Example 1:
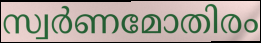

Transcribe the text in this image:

സ്വർണമോതിരം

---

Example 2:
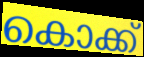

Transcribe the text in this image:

കൊക്ക്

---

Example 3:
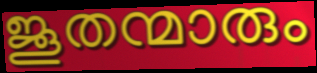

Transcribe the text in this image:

ജൂതന്മാരും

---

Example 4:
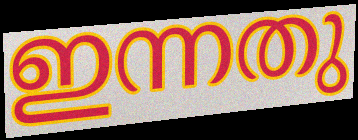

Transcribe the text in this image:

ഇന്നതു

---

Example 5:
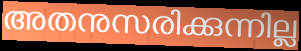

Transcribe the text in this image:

അതനുസരിക്കുന്നില്ല